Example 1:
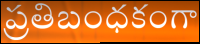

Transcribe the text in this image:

ప్రతిబంధకంగా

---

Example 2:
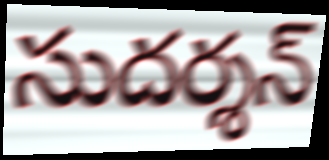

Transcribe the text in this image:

సుదర్శన్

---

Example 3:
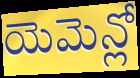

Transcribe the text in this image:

యెమెన్లో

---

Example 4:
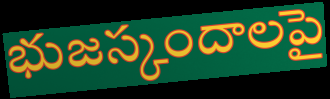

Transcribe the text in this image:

భుజస్కందాలపై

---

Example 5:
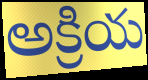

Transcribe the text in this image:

అక్రియ